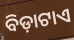
ବିଡ଼ାଟାଏ